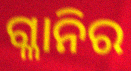
ଗ୍ଳାନିର